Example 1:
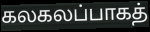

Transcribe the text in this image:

கலகலப்பாகத்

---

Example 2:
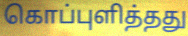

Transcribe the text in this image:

கொப்புளித்தது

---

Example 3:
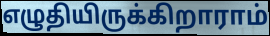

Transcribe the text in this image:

எழுதியிருக்கிறாராம்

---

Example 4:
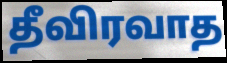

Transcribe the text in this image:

தீவிரவாத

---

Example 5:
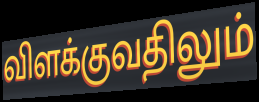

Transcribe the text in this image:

விளக்குவதிலும்